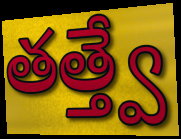
తత్త్వే